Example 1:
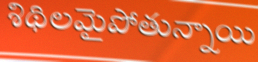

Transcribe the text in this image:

శిథిలమైపోతున్నాయి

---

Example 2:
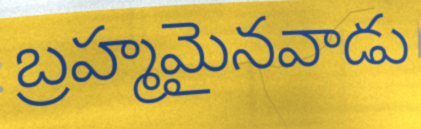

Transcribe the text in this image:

బ్రహ్మమైనవాడు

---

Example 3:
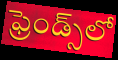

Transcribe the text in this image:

ఫ్రెండ్స్‌లో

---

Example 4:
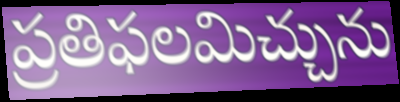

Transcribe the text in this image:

ప్రతిఫలమిచ్చును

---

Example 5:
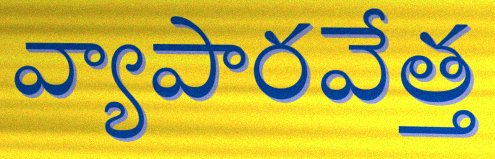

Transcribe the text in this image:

వ్యాపారవేత్త